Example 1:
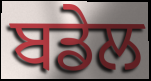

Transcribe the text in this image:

ਬਡੇਲ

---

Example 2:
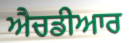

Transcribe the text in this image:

ਐਚਡੀਆਰ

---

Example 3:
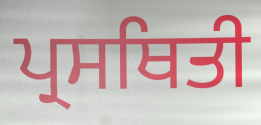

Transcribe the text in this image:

ਪ੍ਰਸਥਿਤੀ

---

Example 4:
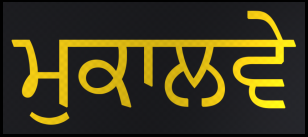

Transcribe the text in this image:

ਮੁਕਾਲਵੇ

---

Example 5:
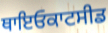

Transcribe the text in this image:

ਥਾਇਓਕਾਟਸੀਡ